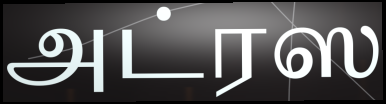
அட்ரஸ